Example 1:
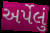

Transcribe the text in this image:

અર્પેલું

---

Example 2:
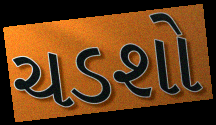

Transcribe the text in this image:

ચડશો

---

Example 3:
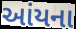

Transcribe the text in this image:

આંયના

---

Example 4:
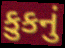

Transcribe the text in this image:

કુકનું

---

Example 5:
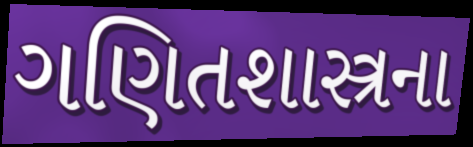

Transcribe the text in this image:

ગણિતશાસ્ત્રના